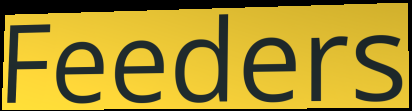
Feeders